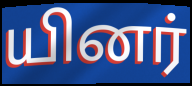
யினர்